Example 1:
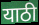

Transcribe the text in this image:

याठी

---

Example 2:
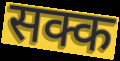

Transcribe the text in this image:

सक्क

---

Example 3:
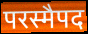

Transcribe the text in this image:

परस्मैपद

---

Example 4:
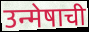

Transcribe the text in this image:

उन्मेषाची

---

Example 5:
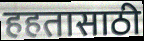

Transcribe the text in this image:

हहतासाठी